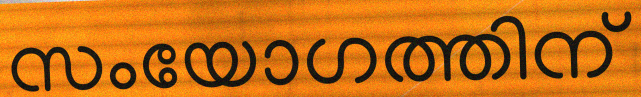
സംയോഗത്തിന്